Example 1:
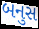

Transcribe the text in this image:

બનુસ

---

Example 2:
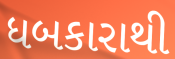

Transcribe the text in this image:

ધબકારાથી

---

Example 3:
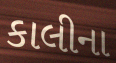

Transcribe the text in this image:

કાલીના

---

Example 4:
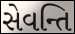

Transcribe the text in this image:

સેવન્તિ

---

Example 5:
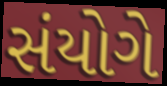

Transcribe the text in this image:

સંયોગે